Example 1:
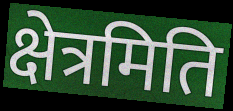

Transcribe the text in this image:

क्षेत्रमिति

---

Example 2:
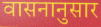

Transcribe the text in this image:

वासनानुसार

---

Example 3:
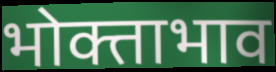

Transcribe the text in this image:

भोक्ताभाव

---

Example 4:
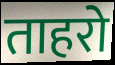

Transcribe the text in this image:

ताहरो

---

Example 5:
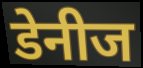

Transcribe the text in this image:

डेनीज